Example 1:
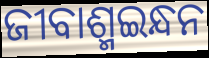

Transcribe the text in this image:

ଜୀବାଶ୍ମଇନ୍ଧନ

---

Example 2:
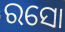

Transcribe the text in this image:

ରସୋ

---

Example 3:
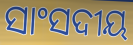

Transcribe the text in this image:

ସାଂସଦୀୟ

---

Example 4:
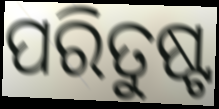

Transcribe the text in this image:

ପରିତୁଷ୍ଟ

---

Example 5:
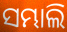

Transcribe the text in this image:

ସମ୍ଭାଲି